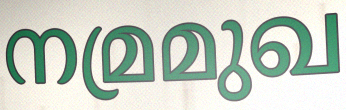
നമ്രമുഖ